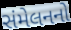
સંમેલનનો